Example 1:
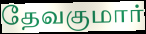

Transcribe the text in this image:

தேவகுமார்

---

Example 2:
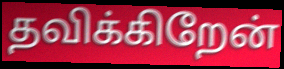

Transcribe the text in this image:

தவிக்கிறேன்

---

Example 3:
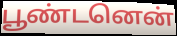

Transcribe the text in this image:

பூண்டனென்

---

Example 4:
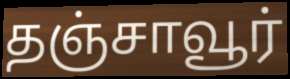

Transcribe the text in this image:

தஞ்சாவூர்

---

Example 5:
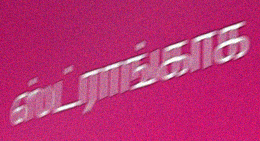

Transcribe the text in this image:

ஸ்ட்ராங்காக